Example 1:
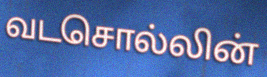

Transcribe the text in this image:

வடசொல்லின்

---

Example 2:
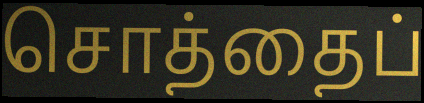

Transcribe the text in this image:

சொத்தைப்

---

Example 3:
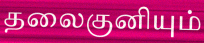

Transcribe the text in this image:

தலைகுனியும்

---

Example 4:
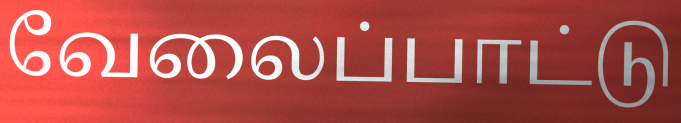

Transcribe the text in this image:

வேலைப்பாட்டு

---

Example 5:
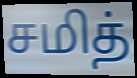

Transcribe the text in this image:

சமித்